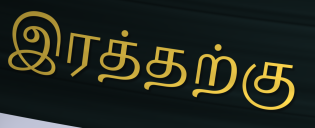
இரத்தற்கு